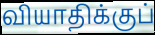
வியாதிக்குப்